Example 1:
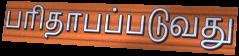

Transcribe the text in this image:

பரிதாபப்படுவது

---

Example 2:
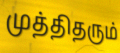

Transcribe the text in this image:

முத்திதரும்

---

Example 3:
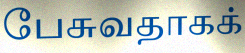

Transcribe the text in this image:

பேசுவதாகக்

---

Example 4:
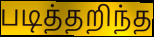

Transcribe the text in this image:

படித்தறிந்த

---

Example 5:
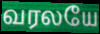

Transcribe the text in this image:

வரலயே